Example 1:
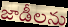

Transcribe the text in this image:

జాడీలను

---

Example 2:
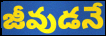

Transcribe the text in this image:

జీవుడనే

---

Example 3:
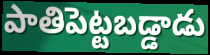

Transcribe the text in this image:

పాతిపెట్టబడ్డాడు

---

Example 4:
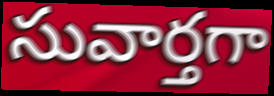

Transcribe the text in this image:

సువార్తగా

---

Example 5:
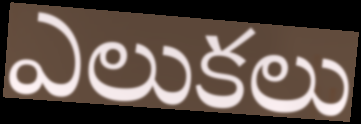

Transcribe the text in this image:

ఎలుకలు